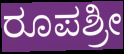
ರೂಪಶ್ರೀ